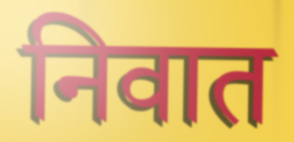
निवात